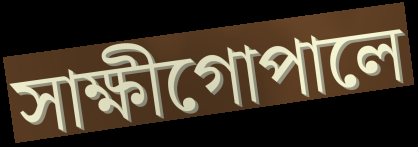
সাক্ষীগোপালে